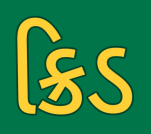
ક્રિડ